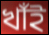
খাঁই